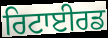
ਰਿਟਾਈਰਡ